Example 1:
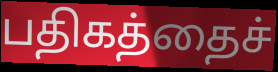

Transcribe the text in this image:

பதிகத்தைச்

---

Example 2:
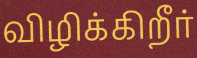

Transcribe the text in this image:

விழிக்கிறீர்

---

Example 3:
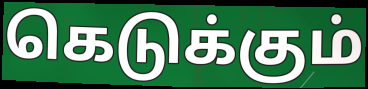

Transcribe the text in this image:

கெடுக்கும்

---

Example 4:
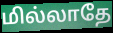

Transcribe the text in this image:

மில்லாதே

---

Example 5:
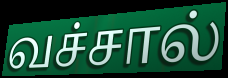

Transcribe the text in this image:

வச்சால்